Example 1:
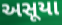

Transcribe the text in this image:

અસૂયા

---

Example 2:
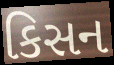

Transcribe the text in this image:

કિસન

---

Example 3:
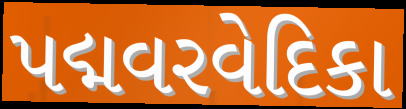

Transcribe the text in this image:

પદ્મવરવેદિકા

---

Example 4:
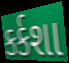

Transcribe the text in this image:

કર્કશા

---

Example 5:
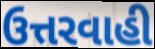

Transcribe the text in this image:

ઉત્તરવાહી